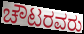
ಚೌಟರವರು